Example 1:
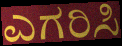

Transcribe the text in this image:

ಎಗರಿಸಿ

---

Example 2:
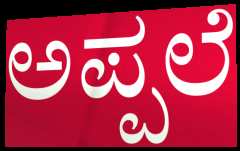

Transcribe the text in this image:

ಅಪ್ಪಲೆ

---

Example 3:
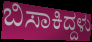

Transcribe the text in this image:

ಬಿಸಾಕಿದ್ದಳು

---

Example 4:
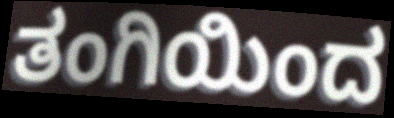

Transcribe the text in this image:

ತಂಗಿಯಿಂದ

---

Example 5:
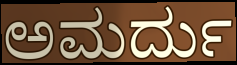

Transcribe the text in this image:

ಅಮರ್ದು